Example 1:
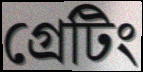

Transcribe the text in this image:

গ্রেটিং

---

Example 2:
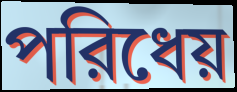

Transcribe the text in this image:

পরিধেয়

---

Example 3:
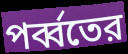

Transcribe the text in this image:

পর্ব্বতের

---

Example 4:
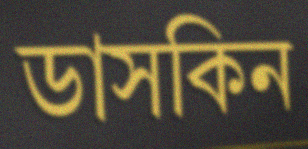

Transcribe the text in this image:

ডাসকিন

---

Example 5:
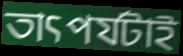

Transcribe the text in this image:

তাৎপর্যটাই